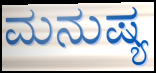
ಮನುಷ್ಯ